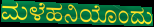
ಮಳೆಹನಿಯೊಂದು